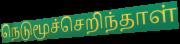
நெடுமூச்செறிந்தாள்